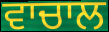
ਵਾਚਾਲ